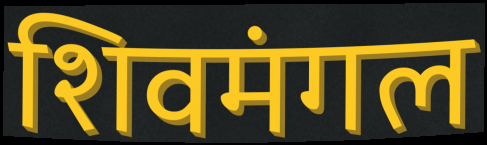
शिवमंगल